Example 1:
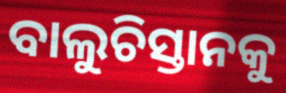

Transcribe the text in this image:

ବାଲୁଚିସ୍ତାନକୁ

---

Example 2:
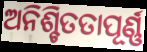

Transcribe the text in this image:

ଅନିଶ୍ଚିତତାପୂର୍ଣ୍ଣ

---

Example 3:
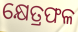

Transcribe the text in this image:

କ୍ଷେତ୍ରଫଳ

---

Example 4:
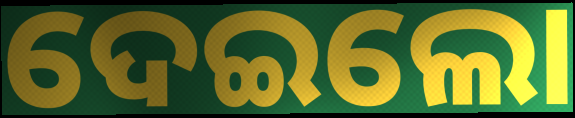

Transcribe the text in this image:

ଦେଇଲୋ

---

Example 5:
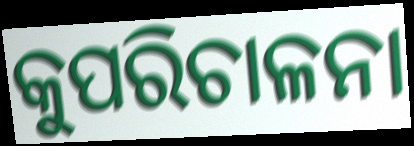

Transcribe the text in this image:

କୁପରିଚାଳନା